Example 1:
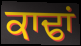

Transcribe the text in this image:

ਕਾਢਾਂ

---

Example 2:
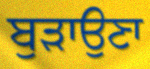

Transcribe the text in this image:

ਬੁੜਾਉਣਾ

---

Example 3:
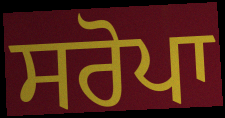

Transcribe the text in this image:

ਸਰੋਪਾ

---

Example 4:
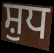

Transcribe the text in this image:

ਸ਼ੁਧ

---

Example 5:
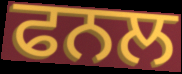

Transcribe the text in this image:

ਫਨਲ